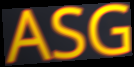
ASG